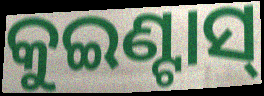
କୁଇଣ୍ଟାସ୍